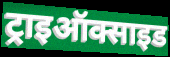
ट्राइऑक्साइड